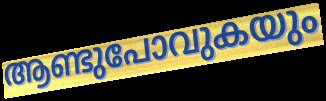
ആണ്ടുപോവുകയും